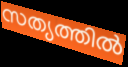
സത്യത്തിൽ